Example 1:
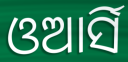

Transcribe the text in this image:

ଓଆର୍ସି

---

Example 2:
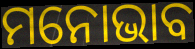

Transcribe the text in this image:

ମନୋଭାବ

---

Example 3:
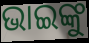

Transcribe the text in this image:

ଭାଇଙ୍କୁ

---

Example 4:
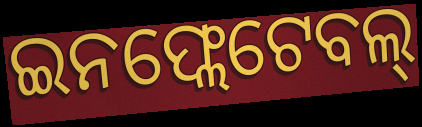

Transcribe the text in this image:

ଇନଫ୍ଲେଟେବଲ୍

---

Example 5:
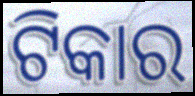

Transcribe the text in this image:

ଟିକାର